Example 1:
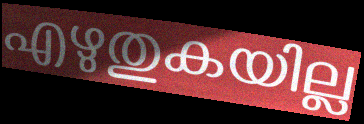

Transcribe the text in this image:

എഴുതുകയില്ല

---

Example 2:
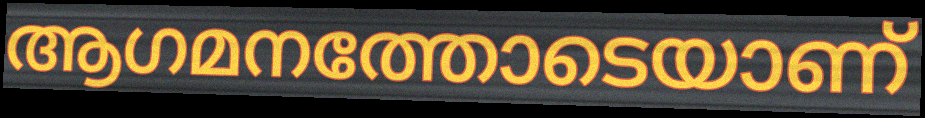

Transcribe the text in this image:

ആഗമനത്തോടെയാണ്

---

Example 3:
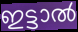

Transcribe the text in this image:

ഇട്ടാൽ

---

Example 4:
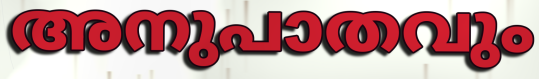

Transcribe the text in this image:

അനുപാതവും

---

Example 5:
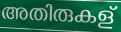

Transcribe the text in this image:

അതിരുകള്